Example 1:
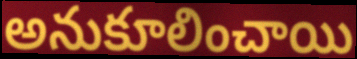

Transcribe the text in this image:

అనుకూలించాయి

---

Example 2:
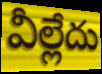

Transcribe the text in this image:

వీల్లేదు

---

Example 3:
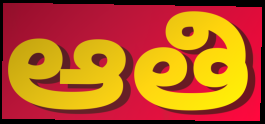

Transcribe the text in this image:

ఆతి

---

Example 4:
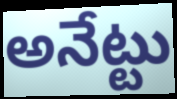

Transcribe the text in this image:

అనేట్టు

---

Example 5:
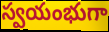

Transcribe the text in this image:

స్వయంభుగా